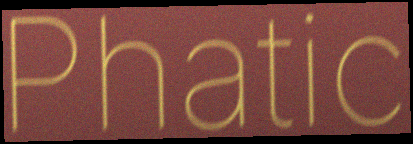
Phatic